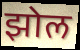
झोल